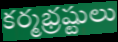
కర్మభ్రష్టులు